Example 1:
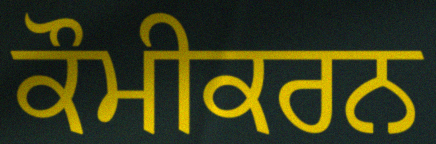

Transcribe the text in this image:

ਕੌਮੀਕਰਨ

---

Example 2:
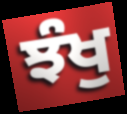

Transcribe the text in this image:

ਝੰਖੁ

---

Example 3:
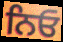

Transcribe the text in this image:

ਨਿਓ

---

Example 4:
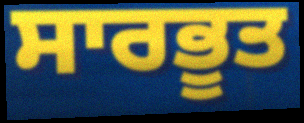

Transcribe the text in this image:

ਸਾਰਭੂਤ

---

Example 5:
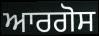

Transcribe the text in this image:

ਆਰਗੋਸ